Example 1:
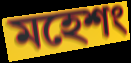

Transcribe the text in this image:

মহেশং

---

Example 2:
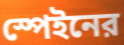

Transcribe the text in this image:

স্পেইনের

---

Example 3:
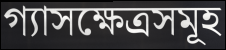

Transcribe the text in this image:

গ্যাসক্ষেত্রসমূহ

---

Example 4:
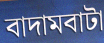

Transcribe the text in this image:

বাদামবাটা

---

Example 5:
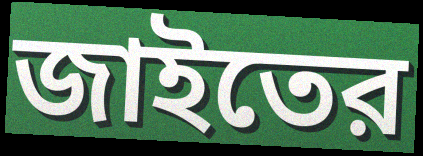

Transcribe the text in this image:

জাইতের